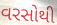
વરસોથી